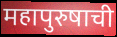
महापुरुषाची